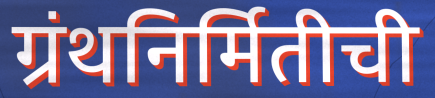
ग्रंथनिर्मितीची